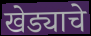
खेड्याचे